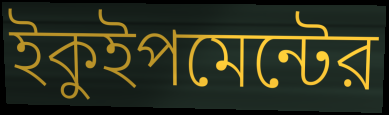
ইকুইপমেন্টের